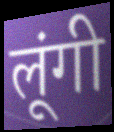
लूंगी